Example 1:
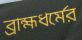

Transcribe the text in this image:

ব্রাহ্মধর্মের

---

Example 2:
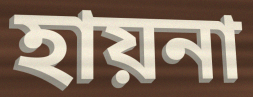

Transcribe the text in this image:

হায়না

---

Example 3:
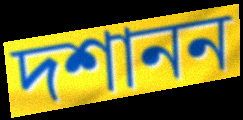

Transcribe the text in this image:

দশানন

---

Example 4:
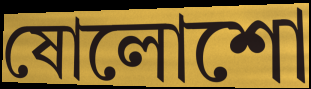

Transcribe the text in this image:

ষোলোশো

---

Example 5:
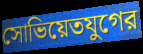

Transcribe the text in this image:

সোভিয়েতযুগের